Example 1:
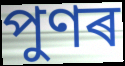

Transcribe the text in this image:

পুণৰ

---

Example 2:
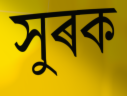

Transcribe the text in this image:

সুৰক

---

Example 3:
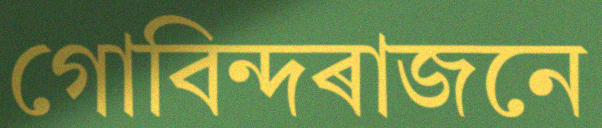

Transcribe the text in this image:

গোবিন্দৰাজনে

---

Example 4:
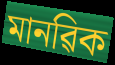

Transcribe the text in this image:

মানৱিক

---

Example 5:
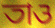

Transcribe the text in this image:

তাও